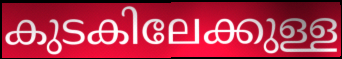
കുടകിലേക്കുള്ള